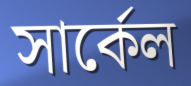
সার্কেল